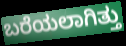
ಬರೆಯಲಾಗಿತ್ತು